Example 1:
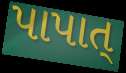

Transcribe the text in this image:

પાપાત્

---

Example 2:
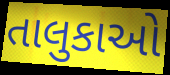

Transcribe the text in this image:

તાલુકાઓ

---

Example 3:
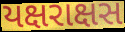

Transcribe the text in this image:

યક્ષરાક્ષસ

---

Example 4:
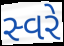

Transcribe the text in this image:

સ્વરે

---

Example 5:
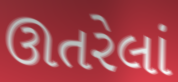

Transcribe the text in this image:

ઊતરેલાં